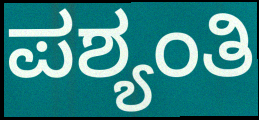
ಪಶ್ಯಂತಿ